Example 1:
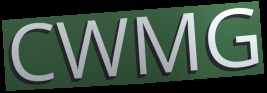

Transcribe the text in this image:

CWMG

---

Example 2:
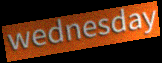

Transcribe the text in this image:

wednesday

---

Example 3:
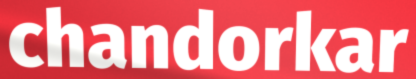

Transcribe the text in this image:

chandorkar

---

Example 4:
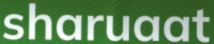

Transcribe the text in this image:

sharuaat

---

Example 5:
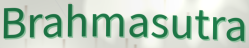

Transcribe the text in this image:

Brahmasutra